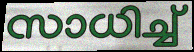
സാധിച്ച്